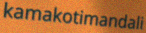
kamakotimandali